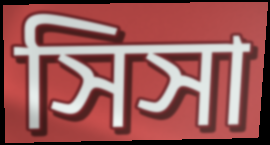
সিসা